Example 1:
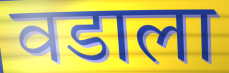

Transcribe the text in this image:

वडाला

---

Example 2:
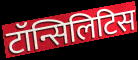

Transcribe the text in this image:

टॉन्सिलिटिस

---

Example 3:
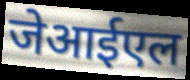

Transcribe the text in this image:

जेआईएल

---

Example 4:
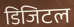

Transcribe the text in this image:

डिजिटल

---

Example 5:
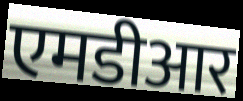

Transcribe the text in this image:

एमडीआर